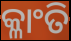
କ୍ଳାଂତି